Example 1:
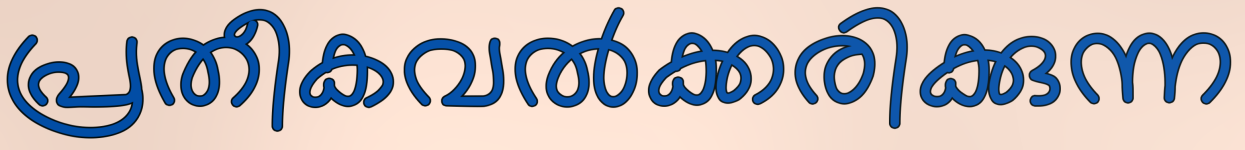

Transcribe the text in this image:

പ്രതീകവൽക്കരിക്കുന്ന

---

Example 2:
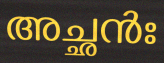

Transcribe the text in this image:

അച്ഛൻഃ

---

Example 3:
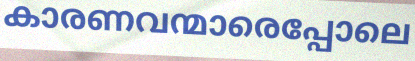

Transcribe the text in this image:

കാരണവന്മാരെപ്പോലെ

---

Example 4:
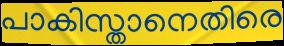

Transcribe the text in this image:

പാകിസ്താനെതിരെ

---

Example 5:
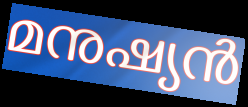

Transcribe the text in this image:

മനുഷ്യൻ